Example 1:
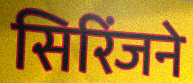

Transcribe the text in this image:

सिरिंजने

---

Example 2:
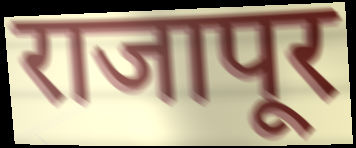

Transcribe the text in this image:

राजापूर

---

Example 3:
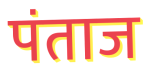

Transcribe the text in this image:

पंताज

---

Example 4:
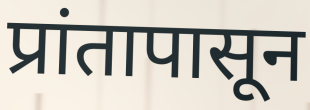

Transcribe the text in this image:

प्रांतापासून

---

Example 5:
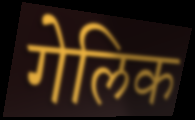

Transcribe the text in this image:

गेलिक